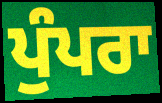
ਪੁੰਪਰਾ